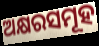
ଅକ୍ଷରସମୂହ